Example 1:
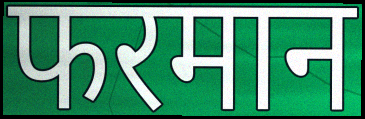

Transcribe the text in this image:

फरमान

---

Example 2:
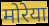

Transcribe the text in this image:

मोरेया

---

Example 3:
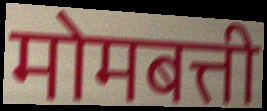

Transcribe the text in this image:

मोमबत्ती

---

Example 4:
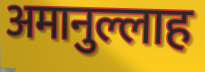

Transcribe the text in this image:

अमानुल्लाह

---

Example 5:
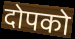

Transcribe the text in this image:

दोपको